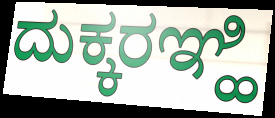
ದುಕ್ಕರಞ್ಹಿ